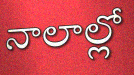
నాలాల్లో